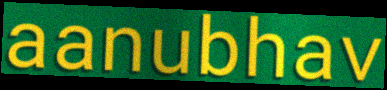
aanubhav